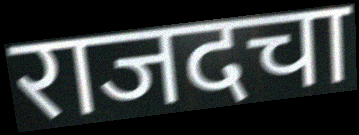
राजदचा